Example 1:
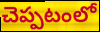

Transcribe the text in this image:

చెప్పటంలో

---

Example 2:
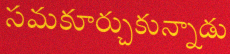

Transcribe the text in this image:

సమకూర్చుకున్నాడు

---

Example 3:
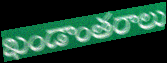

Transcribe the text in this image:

ఖండాంతరాలు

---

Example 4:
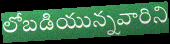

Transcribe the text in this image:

లోబడియున్నవారిని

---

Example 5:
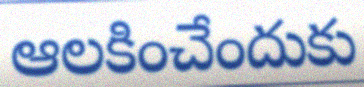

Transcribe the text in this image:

ఆలకించేందుకు